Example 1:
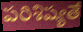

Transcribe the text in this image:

పరిశిష్యతే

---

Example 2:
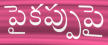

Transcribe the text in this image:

పైకప్పుపై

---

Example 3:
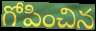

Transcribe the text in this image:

గోపించిన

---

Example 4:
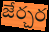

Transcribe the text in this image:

జేర్చర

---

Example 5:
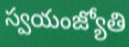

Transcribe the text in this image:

స్వయంజ్యోతి